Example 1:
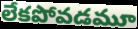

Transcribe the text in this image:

లేకపోవడమూ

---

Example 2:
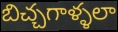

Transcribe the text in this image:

బిచ్చగాళ్ళలా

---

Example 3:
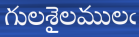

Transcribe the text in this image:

గులశైలములఁ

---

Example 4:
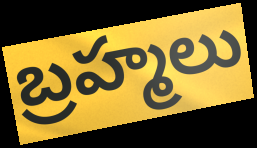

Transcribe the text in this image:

బ్రహ్మలు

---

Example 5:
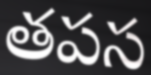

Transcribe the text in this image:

తపస